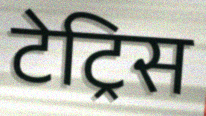
टेट्रिस